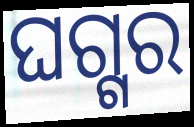
ଘଗ୍ଗର